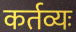
कर्तव्यः